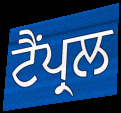
ਟੈਂਪ੍ਰਲ